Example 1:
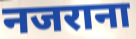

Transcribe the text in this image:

नजराना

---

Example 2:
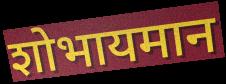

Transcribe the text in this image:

शोभायमान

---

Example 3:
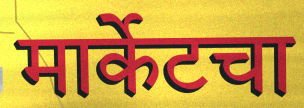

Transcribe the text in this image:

मार्केटचा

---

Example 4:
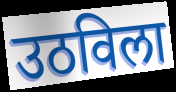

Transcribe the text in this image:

उठविला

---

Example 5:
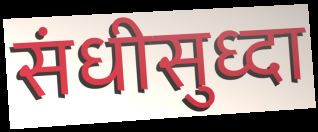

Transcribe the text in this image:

संधीसुध्दा